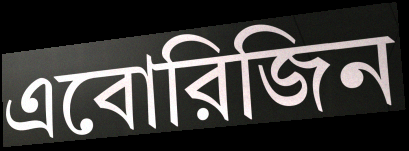
এবোরিজিন